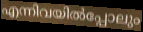
എന്നിവയിൽപ്പോലും